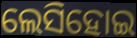
ଲେସିହୋଇ